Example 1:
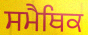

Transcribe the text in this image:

ਸਮੈਥਿਕ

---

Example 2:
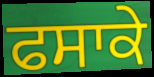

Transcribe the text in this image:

ਫਸਾਕੇ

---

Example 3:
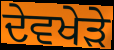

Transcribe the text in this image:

ਦੇਵਖੇੜੇ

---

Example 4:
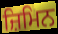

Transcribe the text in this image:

ਜ਼ਿਮਿਨ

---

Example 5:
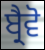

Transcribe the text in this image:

ਬ੍ਰੈਵੋ